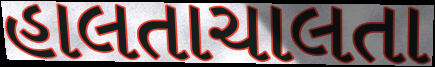
હાલતાચાલતા